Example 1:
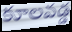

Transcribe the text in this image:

కూలవడ్డ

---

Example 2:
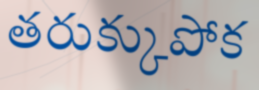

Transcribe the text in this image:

తరుక్కుపోక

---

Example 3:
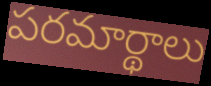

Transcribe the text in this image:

పరమార్థాలు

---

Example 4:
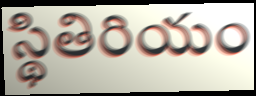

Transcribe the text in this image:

స్థితిరియం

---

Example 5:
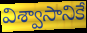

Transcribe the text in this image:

విశ్వాసానికే